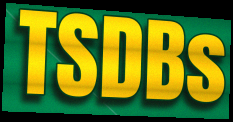
TSDBs